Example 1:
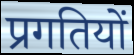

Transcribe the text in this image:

प्रगतियों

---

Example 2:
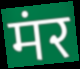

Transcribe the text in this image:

मंर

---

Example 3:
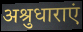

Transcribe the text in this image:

अश्रुधाराएं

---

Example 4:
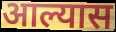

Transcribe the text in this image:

आल्यास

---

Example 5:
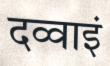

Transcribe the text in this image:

दव्वाइं